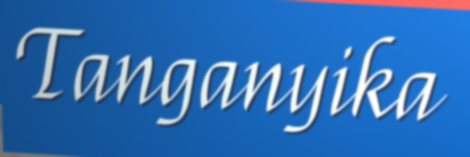
Tanganyika